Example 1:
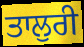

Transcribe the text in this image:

ਤਾਲੁਰੀ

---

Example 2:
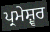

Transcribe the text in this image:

ਪ੍ਰਮੇਸ਼੍ਵਰ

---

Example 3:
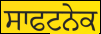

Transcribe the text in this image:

ਸਾਫਟਨੇਕ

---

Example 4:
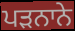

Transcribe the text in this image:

ਪੜਨਾਨੇ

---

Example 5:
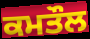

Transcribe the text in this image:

ਕਮਤੌਲ